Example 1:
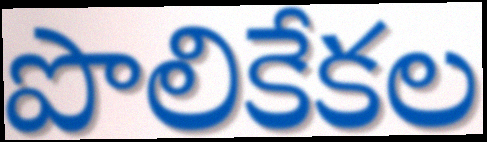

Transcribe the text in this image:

పొలికేకల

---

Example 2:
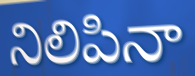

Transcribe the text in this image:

నిలిపినా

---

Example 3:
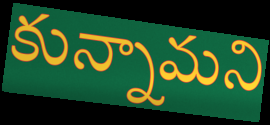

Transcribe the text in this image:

కున్నామని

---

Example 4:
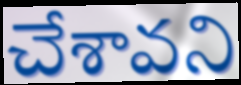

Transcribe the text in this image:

చేశావని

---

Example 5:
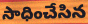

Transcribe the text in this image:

సాధించేసిన